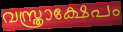
വസ്ത്രാക്ഷേപം